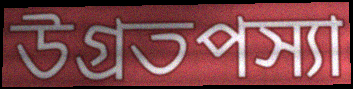
উগ্রতপস্যা